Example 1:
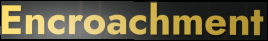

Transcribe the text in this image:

Encroachment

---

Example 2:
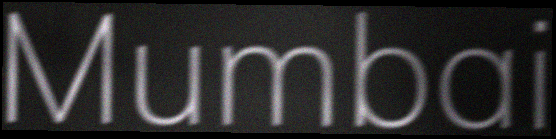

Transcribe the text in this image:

Mumbai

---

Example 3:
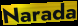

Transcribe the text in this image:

Narada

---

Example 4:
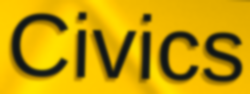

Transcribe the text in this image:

Civics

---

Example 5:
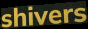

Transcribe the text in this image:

shivers